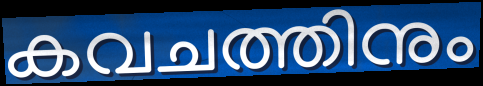
കവചത്തിനും